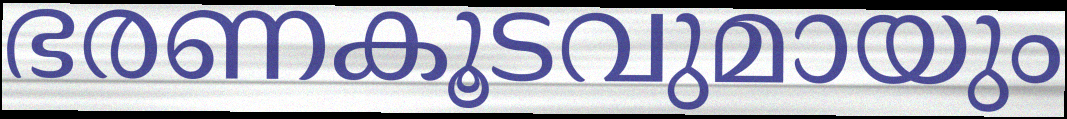
ഭരണകൂടവുമായും